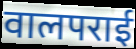
वालपराई